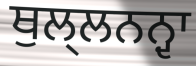
ਥੁਲ੍ਲਨਨ੍ਦਾ